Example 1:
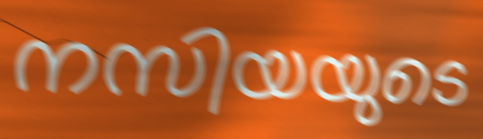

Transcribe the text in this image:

നസിയയുടെ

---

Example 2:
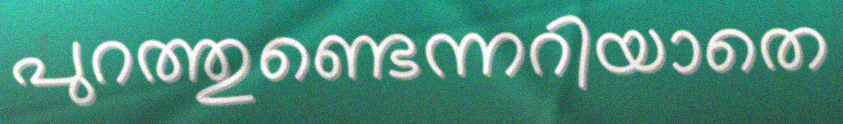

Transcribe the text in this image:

പുറത്തുണ്ടെന്നറിയാതെ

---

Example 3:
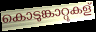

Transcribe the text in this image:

കൊടുങ്കാറ്റുകള്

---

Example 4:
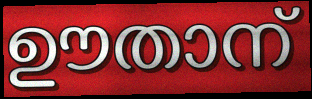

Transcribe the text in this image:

ഊതാന്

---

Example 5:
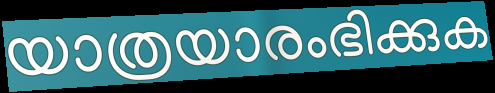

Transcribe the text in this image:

യാത്രയാരംഭിക്കുക